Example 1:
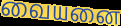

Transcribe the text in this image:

வையனை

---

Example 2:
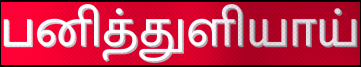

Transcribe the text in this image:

பனித்துளியாய்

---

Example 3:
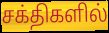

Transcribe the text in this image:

சக்திகளில்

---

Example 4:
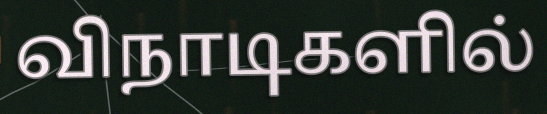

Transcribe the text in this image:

விநாடிகளில்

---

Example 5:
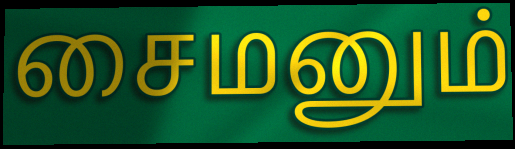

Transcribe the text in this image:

சைமனும்